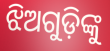
ଝିଅଗୁଡ଼ିଙ୍କୁ